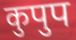
कुपुप